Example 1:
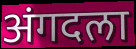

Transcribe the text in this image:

अंगदला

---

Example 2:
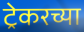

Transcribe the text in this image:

ट्रेकरच्या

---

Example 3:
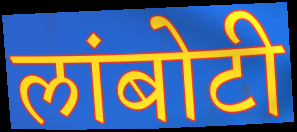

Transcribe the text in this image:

लांबोटी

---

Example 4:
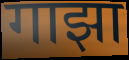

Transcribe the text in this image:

गाझा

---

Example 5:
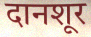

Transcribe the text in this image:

दानशूर